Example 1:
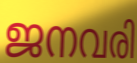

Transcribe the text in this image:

ജനവരി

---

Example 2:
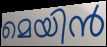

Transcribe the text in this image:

മെയിൻ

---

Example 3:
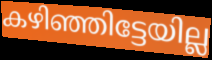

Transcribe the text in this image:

കഴിഞ്ഞിട്ടേയില്ല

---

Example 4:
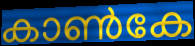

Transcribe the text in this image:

കാൺകേ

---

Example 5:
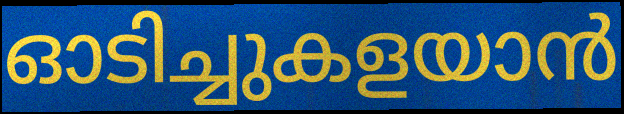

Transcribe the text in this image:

ഓടിച്ചുകളയാൻ